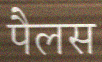
पैलस